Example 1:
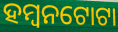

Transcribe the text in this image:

ହମ୍ବନଟୋଟା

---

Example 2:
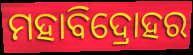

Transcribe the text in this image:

ମହାବିଦ୍ରୋହର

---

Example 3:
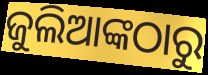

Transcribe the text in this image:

ଜୁଲିଆଙ୍କଠାରୁ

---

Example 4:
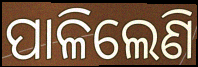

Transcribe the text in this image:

ପାଳିଲେଣି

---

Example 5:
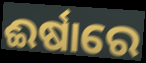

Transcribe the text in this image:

ଈର୍ଷାରେ